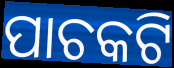
ପାଚକଟି